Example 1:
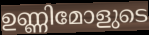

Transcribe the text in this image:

ഉണ്ണിമോളുടെ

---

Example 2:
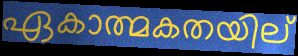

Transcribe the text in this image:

ഏകാത്മകതയില്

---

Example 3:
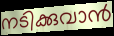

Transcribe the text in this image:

നടിക്കുവാൻ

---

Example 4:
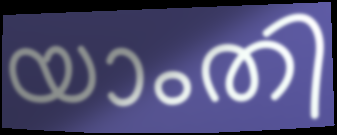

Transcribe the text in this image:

യാംതി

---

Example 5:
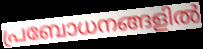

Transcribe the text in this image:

പ്രബോധനങ്ങളിൽ